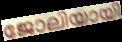
ജോലിയായി